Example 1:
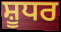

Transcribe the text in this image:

ਸ਼ੂਧਰ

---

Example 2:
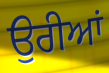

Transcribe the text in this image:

ਉਰੀਆਂ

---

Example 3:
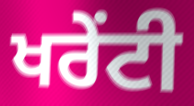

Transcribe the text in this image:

ਖਰੇਂਟੀ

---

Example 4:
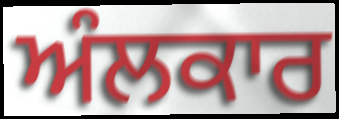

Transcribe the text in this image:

ਅੰਲਕਾਰ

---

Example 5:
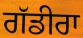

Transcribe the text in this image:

ਗੱਡੀਰਾ